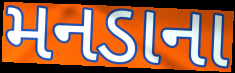
મનડાના